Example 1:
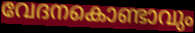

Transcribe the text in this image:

വേദനകൊണ്ടാവും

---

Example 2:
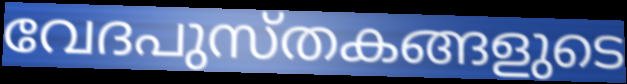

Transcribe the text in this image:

വേദപുസ്തകങ്ങളുടെ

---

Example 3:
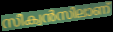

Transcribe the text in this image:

സീക്വൻസിലാണ്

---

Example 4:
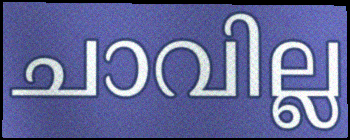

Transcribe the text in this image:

ചാവില്ല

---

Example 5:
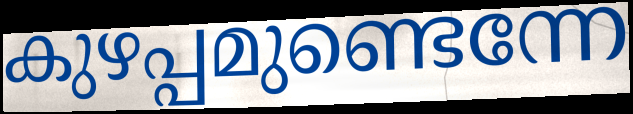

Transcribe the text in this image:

കുഴപ്പമുണ്ടെന്നേ